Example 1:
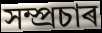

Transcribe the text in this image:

সম্প্ৰচাৰ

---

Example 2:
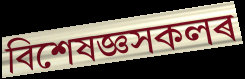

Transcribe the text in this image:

বিশেষজ্ঞসকলৰ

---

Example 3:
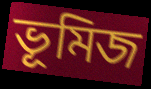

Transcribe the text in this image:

ভূমিজ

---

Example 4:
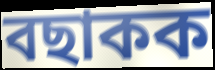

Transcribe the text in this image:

বছাকক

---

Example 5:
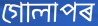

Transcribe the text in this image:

গোলাপৰ